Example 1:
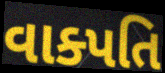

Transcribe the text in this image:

વાક્પતિ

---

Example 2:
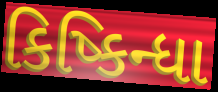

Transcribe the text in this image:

કિષ્કિન્ધા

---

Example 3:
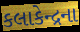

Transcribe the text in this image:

કલાકેન્દ્રના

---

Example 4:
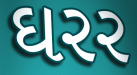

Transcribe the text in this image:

ઘરર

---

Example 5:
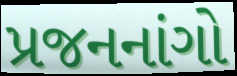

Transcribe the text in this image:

પ્રજનનાંગો